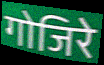
गोजिरे